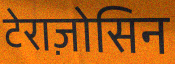
टेराज़ोसिन